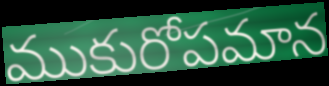
ముకురోపమాన